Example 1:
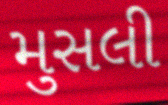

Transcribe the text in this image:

મુસલી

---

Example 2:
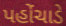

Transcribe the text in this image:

પહોંચાડે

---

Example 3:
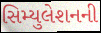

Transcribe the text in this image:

સિમ્યુલેશનની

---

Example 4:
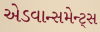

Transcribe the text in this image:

એડવાન્સમેન્ટ્સ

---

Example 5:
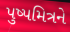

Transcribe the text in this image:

પુષ્પમિત્રને